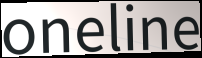
oneline